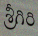
శ్రీగిరి